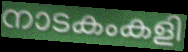
നാടകംകളി